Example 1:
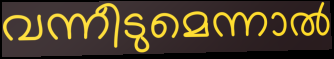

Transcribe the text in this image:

വന്നീടുമെന്നാൽ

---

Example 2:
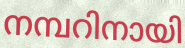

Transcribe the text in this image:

നമ്പറിനായി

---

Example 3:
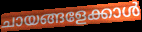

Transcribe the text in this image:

ചായങ്ങളേക്കാൾ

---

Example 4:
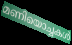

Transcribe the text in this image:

മണിയൊച്ചകൾ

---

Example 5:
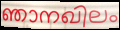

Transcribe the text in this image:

ഞാനഖിലം